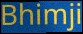
Bhimji